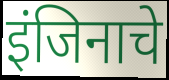
इंजिनाचे